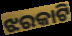
ଝରକାଟି